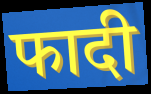
फादी